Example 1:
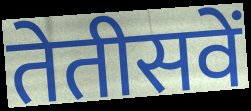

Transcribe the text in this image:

तेतीसवें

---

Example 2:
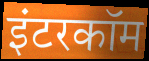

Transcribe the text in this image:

इंटरकॉम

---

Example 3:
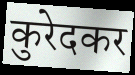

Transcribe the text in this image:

कुरेदकर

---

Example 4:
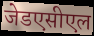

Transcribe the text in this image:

जेडएसीएल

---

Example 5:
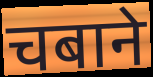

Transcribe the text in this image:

चबाने